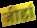
जीहां